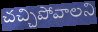
చచ్చిపోవాలని